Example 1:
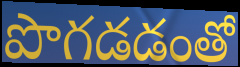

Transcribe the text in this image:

పొగడడంతో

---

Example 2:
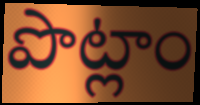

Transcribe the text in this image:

పొట్లాం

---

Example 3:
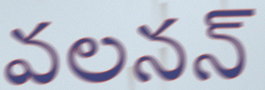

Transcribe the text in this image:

వలనన్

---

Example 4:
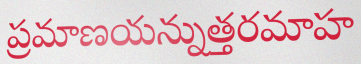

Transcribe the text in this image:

ప్రమాణయన్నుత్తరమాహ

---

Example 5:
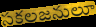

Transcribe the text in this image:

సకలజనులూ